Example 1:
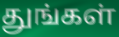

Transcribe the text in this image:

துங்கள்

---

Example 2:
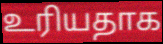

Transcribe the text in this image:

உரியதாக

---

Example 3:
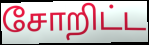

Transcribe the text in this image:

சோறிட்ட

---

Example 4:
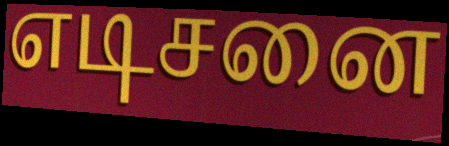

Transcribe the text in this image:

எடிசனை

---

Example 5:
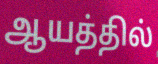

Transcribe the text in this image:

ஆயத்தில்